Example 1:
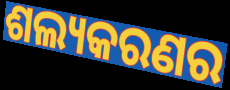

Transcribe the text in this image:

ଶଲ୍ୟକରଣର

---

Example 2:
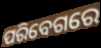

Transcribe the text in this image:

ପରିବେଗରେ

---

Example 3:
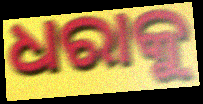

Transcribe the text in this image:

ଧରାକୁ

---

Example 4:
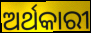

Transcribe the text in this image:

ଅର୍ଥକାରୀ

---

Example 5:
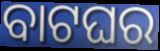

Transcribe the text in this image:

ବାଟଘର